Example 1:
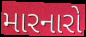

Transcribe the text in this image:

મારનારો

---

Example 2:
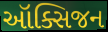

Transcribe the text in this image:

ઑક્સિજન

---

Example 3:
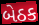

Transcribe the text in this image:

બેઠક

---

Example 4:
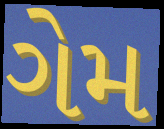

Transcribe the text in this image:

ગેમ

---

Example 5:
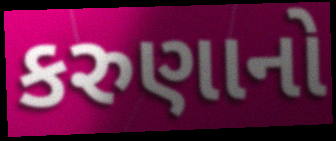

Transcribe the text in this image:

કરુણાનો